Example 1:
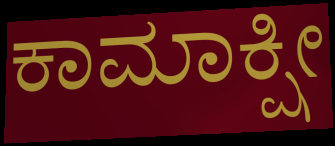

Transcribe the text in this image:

ಕಾಮಾಕ್ಷೀ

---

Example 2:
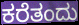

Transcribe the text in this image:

ಕರೆತಂದು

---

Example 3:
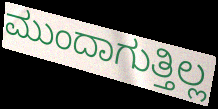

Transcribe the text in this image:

ಮುಂದಾಗುತ್ತಿಲ್ಲ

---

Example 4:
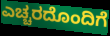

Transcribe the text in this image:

ಎಚ್ಚರದೊಂದಿಗೆ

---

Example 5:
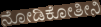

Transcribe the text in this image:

ನೋಡಿಕೋತೀನಿ